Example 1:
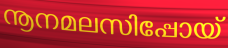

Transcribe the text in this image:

നൂനമലസിപ്പോയ്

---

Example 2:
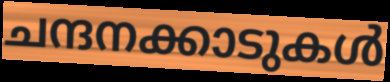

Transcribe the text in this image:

ചന്ദനക്കാടുകൾ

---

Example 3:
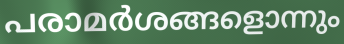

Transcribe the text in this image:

പരാമർശങ്ങളൊന്നും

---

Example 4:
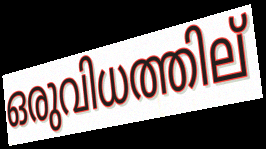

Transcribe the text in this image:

ഒരുവിധത്തില്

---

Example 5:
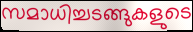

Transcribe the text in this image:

സമാധിച്ചടങ്ങുകളുടെ